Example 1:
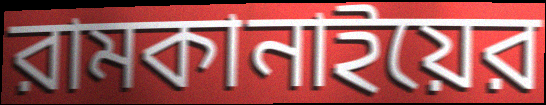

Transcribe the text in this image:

রামকানাইয়ের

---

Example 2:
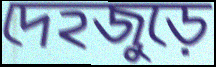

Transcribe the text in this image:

দেহজুড়ে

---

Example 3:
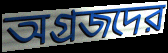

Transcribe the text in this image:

অগ্রজদের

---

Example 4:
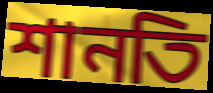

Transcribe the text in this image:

শানতি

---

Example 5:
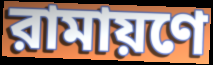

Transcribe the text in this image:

রামায়ণে